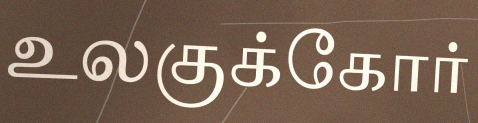
உலகுக்கோர்